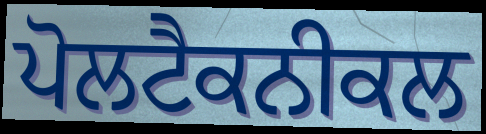
ਪੋਲਟੈਕਨੀਕਲ